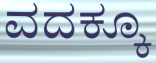
ವದಕ್ಕೂ